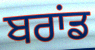
ਬਰਾਂਡ